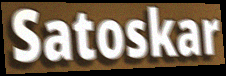
Satoskar